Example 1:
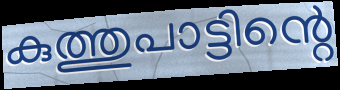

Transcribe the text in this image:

കുത്തുപാട്ടിന്റെ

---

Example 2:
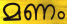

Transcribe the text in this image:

മണം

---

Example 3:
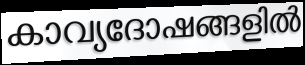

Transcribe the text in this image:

കാവ്യദോഷങ്ങളിൽ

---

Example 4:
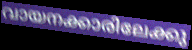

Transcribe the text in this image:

വായനക്കാരിലേക്കു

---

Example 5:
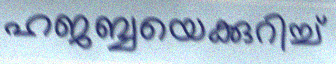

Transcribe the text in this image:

ഹജബ്ബയെക്കുറിച്ച്